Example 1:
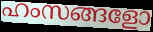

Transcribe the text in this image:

ഹംസങ്ങളോ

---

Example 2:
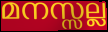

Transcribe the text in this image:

മനസ്സല്ല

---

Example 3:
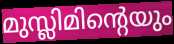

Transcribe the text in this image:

മുസ്ലിമിന്റെയും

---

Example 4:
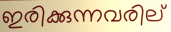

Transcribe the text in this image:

ഇരിക്കുന്നവരില്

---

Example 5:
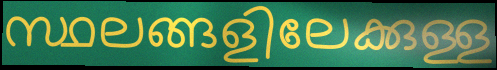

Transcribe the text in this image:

സ്ഥലങ്ങളിലേക്കുള്ള